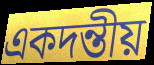
একদন্তীয়